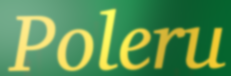
Poleru